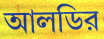
আলডির